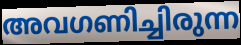
അവഗണിച്ചിരുന്ന